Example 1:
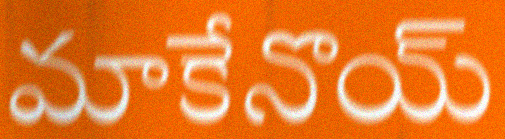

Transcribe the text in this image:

మాకేనొయ్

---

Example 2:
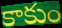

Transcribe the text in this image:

కాకుం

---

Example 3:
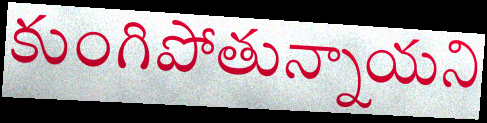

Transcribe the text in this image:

కుంగిపోతున్నాయని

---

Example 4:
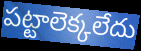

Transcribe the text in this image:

పట్టాలెక్కలేదు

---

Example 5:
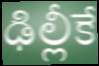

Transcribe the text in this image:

ఢిల్లీకే